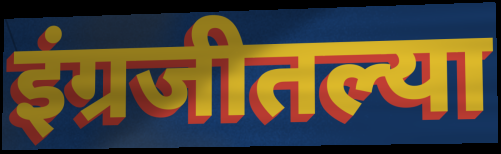
इंग्रजीतल्या